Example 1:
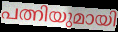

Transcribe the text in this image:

പത്നിയുമായി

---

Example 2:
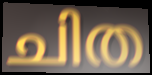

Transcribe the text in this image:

ചിത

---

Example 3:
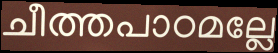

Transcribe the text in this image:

ചീത്തപാഠമല്ലേ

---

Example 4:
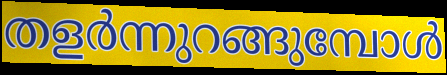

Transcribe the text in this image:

തളർന്നുറങ്ങുമ്പോൾ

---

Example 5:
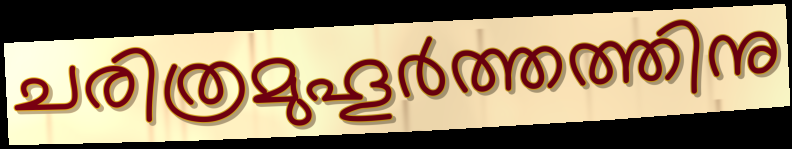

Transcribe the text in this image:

ചരിത്രമുഹൂർത്തത്തിനു